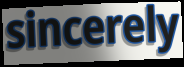
sincerely